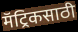
मॅट्रिकसाठी